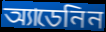
অ্যাডেনিন